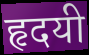
हृदयी